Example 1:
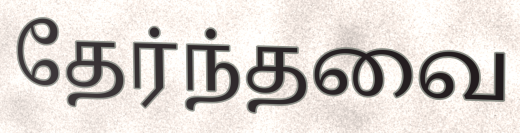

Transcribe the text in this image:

தேர்ந்தவை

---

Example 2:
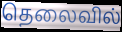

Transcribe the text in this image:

தெலைவில்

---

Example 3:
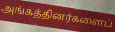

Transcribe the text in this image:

அங்கத்தினர்களைப்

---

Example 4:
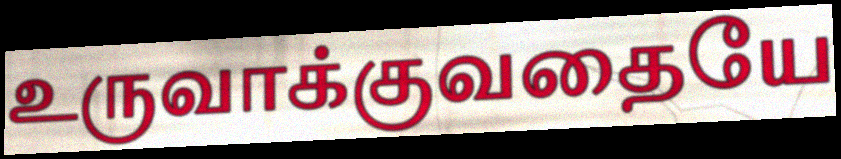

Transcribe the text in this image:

உருவாக்குவதையே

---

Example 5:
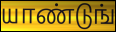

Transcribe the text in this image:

யாண்டுங்